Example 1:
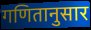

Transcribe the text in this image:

गणितानुसार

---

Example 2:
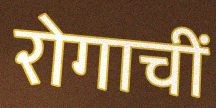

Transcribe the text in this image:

रोगाचीं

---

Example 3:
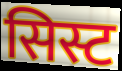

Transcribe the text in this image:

सिस्ट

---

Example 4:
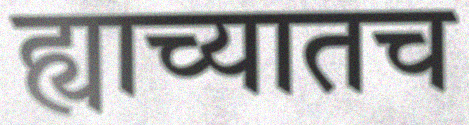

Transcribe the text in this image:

ह्याच्यातच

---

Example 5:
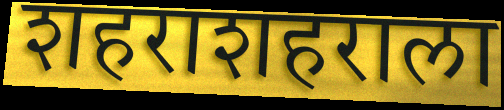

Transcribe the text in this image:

शहराशहराला